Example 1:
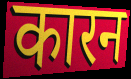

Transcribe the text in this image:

कारन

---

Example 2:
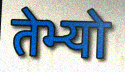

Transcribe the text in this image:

तेभ्यो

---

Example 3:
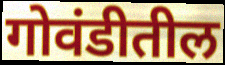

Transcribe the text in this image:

गोवंडीतील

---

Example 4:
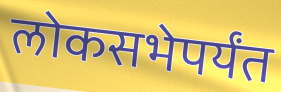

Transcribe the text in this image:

लोकसभेपर्यंत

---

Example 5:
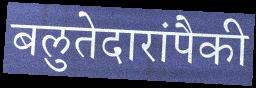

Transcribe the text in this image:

बलुतेदारांपैकी